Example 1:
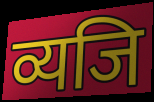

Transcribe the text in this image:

व्यजि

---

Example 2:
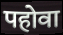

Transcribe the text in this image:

पहोवा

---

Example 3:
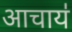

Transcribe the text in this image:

आचाय॑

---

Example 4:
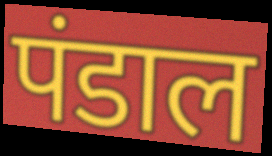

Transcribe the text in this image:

पंडाल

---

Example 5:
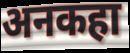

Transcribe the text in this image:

अनकहा